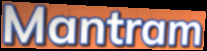
Mantram